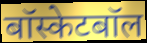
बॉस्केटबॉल